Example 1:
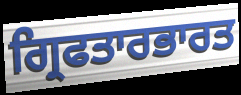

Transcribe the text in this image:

ਗ੍ਰਿਫਤਾਰਭਾਰਤ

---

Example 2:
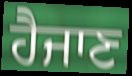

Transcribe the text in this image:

ਹੈਜਾਣ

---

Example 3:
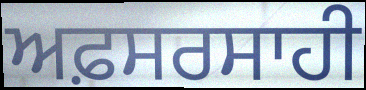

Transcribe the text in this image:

ਅਫ਼ਸਰਸਾਹੀ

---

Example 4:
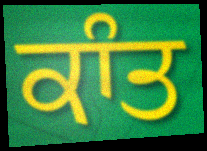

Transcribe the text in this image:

ਕਾੰਤ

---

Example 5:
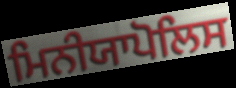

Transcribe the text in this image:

ਮਿਨੀਯਾਪੋਲਿਸ